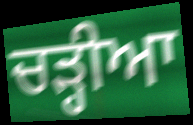
ਚੜ੍ਹੀਆ